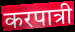
करपात्री